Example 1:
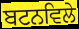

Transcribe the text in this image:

ਬਟਨਵਿਲੇ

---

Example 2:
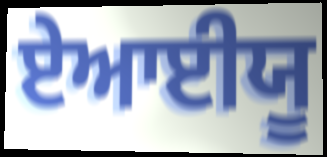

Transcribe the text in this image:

ਏਆਈਯੂ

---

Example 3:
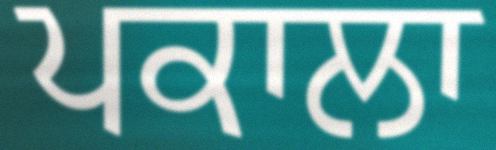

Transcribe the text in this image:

ਪਕਾਲਾ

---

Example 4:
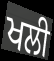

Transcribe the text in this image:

ਖਲੀ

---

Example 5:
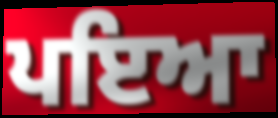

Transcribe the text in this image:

ਪਇਆ